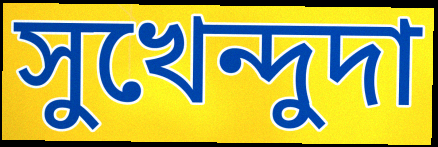
সুখেন্দুদা